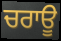
ਚਰਾਊ